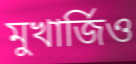
মুখার্জিও